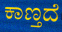
ಕಾಣ್ತದೆ